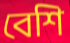
বেশি